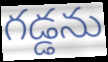
గడ్డను